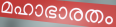
മഹാഭാരതം